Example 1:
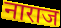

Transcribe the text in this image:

नाराज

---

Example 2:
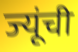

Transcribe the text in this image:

ज्यूंची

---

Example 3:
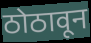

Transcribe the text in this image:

ठोठावून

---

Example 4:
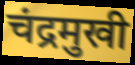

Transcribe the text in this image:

चंद्रमुखी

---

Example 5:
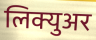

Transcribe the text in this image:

लिक्युअर